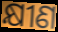
କ୍ଷୀଣ